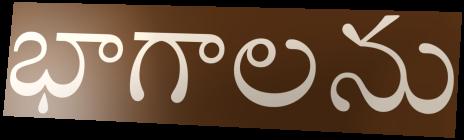
భాగాలను